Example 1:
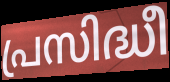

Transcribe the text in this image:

പ്രസിദ്ധീ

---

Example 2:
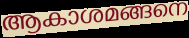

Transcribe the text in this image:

ആകാശമങ്ങനെ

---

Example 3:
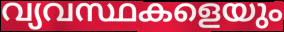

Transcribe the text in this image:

വ്യവസ്ഥകളെയും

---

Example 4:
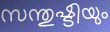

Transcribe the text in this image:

സന്തുഷ്ടിയും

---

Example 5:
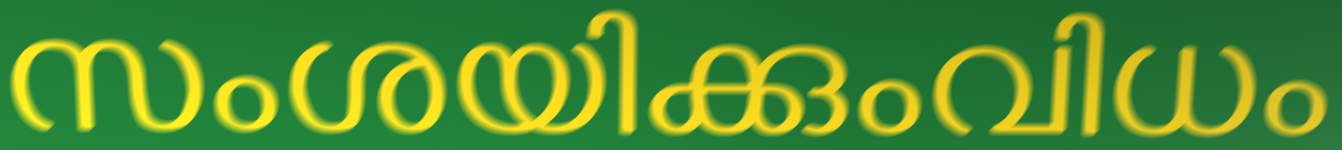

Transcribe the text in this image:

സംശയിക്കുംവിധം